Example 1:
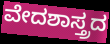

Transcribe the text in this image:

ವೇದಶಾಸ್ತ್ರದ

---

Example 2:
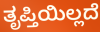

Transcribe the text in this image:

ತೃಪ್ತಿಯಿಲ್ಲದೆ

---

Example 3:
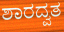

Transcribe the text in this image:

ಶಾರದ್ವತ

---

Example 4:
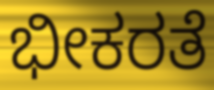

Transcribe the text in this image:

ಭೀಕರತೆ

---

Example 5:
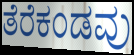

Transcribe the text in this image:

ತೆರೆಕಂಡವು